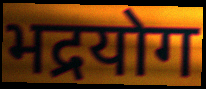
भद्रयोग